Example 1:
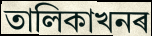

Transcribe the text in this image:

তালিকাখনৰ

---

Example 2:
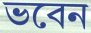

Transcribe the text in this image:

ভবেন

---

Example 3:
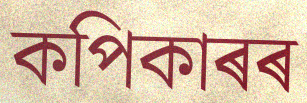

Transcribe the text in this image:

কপিকাৰৰ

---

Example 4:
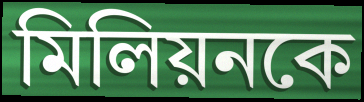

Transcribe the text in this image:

মিলিয়নকে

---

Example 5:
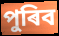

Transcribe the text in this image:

পুৰিব